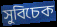
সুবিচেক